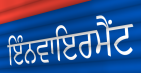
ਇੰਨਵਾਇਰਮੈਂਟ